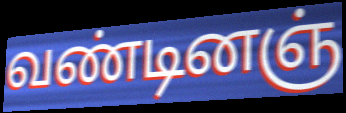
வண்டினஞ்